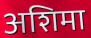
अशिमा